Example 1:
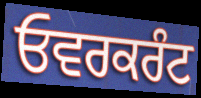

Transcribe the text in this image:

ਓਵਰਕਰੰਟ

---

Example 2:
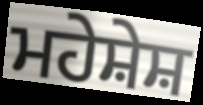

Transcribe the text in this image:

ਮਹੇਸ਼ੇਸ਼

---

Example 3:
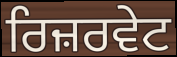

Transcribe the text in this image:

ਰਿਜ਼ਰਵੇਟ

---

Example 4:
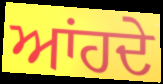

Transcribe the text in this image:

ਆਂਹਦੇ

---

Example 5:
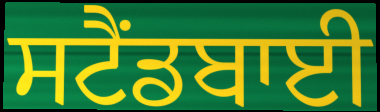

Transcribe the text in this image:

ਸਟੈਂਡਬਾਈ